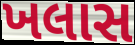
ખલાસ